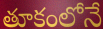
తూకంలోనే